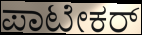
ಪಾಟೇಕರ್